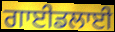
ਗਾਈਡਲਾਈ